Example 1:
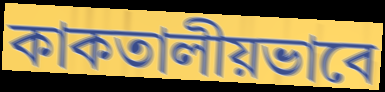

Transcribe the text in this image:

কাকতালীয়ভাবে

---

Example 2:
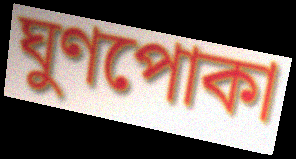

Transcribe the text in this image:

ঘুণপোকা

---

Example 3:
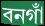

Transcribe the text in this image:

বনগাঁ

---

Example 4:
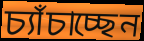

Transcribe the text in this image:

চ্যাঁচাচ্ছেন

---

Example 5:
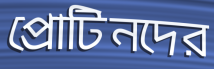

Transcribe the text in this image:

প্রোটিনদের